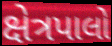
ક્ષેત્રપાલો